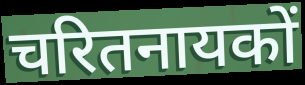
चरितनायकों